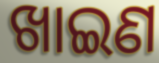
ଖାଇଣ